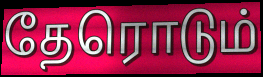
தேரொடும்